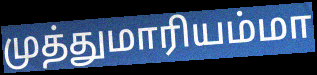
முத்துமாரியம்மா